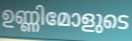
ഉണ്ണിമോളുടെ